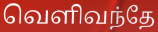
வெளிவந்தே